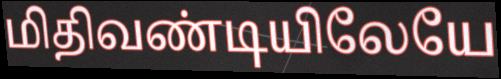
மிதிவண்டியிலேயே